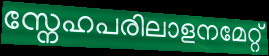
സ്നേഹപരിലാളനമേറ്റ്